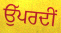
ਉੱਪਰਦੀਂ